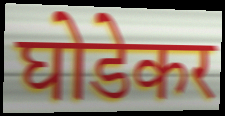
घोडेकर